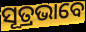
ସୂତ୍ରଭାବେ